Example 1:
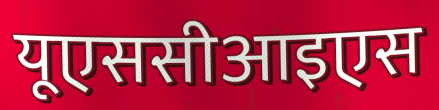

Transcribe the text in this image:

यूएससीआइएस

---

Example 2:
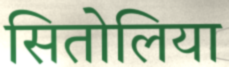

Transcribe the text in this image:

सितोलिया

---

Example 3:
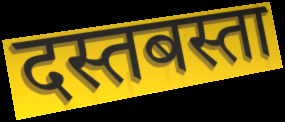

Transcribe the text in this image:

दस्तबस्ता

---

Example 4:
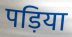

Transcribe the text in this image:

पड़िया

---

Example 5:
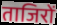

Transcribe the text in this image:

ताजिरों